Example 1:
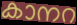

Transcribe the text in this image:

കാനറ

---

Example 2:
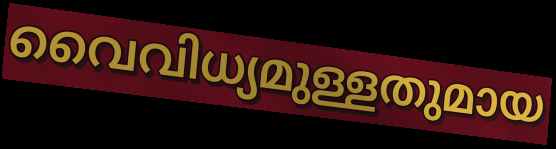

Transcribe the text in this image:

വൈവിധ്യമുള്ളതുമായ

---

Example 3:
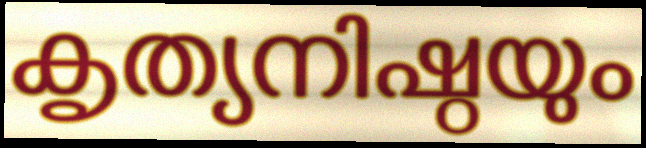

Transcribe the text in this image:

കൃത്യനിഷ്ഠയും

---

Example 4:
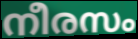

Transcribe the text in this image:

നീരസം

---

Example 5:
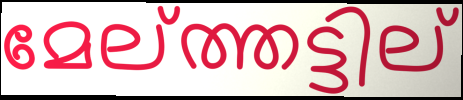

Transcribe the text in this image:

മേല്ത്തട്ടില്